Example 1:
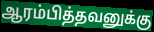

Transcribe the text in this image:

ஆரம்பித்தவனுக்கு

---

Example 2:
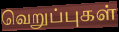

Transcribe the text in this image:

வெறுப்புகள்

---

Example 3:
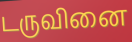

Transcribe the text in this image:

டருவினை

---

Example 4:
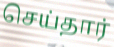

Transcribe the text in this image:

செய்தார்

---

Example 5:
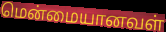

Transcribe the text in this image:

மென்மையானவள்